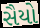
સૈયો